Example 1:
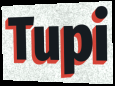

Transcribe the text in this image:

Tupi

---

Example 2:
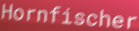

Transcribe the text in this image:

Hornfischer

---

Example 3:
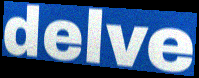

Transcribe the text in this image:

delve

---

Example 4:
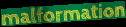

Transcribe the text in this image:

malformation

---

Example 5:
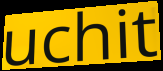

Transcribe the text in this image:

uchit